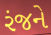
રંજને